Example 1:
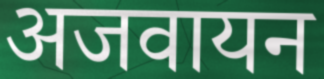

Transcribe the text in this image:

अजवायन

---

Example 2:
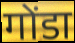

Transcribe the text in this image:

गोंडा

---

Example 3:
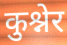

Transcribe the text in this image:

कुश्नेर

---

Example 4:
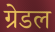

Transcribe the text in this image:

ग्रेडल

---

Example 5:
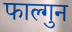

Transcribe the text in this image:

फाल्गुन